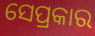
ସେପ୍ରକାର